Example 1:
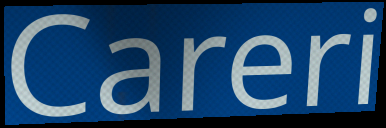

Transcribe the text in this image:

Careri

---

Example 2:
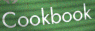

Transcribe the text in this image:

Cookbook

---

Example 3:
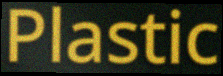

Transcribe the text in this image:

Plastic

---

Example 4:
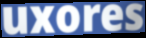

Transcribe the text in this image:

uxores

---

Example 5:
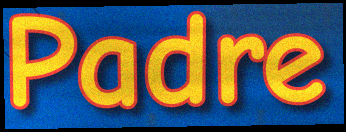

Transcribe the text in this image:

Padre